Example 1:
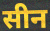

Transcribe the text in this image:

सीन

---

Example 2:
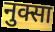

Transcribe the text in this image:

नुक्सा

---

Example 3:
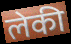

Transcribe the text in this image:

लेकी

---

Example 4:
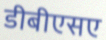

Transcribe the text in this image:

डीबीएसए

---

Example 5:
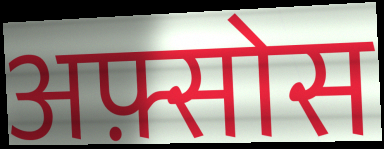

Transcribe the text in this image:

अफ़्सोस